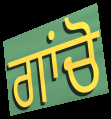
ਗਾਂਚੋ